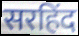
सरहिंद